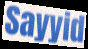
Sayyid